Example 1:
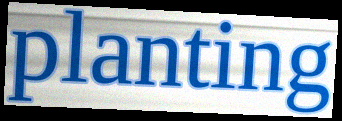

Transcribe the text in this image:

planting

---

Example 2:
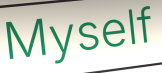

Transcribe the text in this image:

Myself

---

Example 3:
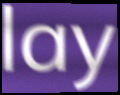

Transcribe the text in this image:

lay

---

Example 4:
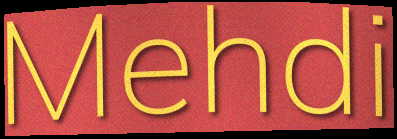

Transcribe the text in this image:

Mehdi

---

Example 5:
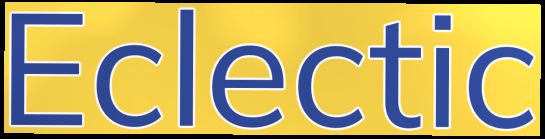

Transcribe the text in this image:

Eclectic